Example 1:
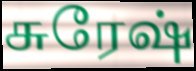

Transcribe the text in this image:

சுரேஷ்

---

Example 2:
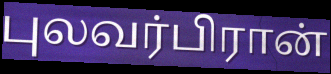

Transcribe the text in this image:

புலவர்பிரான்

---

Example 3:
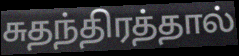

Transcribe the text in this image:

சுதந்திரத்தால்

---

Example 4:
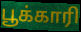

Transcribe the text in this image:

பூக்காரி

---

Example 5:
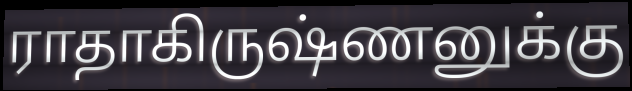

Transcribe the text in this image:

ராதாகிருஷ்ணனுக்கு